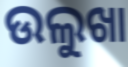
ଉଲୁଖା